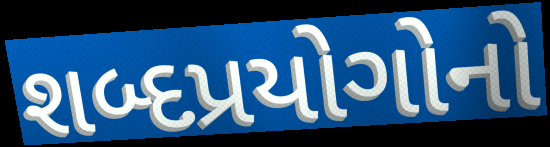
શબ્દપ્રયોગોનો